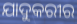
ଯାଦୁକରୀର